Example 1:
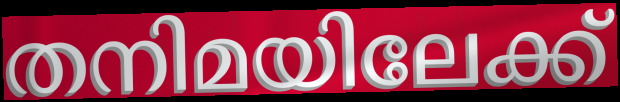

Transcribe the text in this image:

തനിമയിലേക്ക്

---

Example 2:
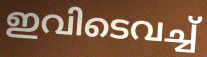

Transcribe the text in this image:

ഇവിടെവച്ച്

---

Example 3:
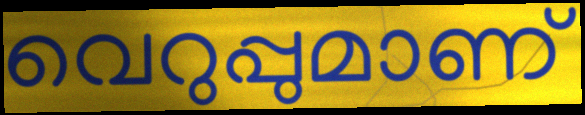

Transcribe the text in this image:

വെറുപ്പുമാണ്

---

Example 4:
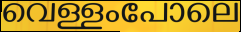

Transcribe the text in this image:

വെള്ളംപോലെ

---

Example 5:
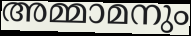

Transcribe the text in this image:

അമ്മാമനും